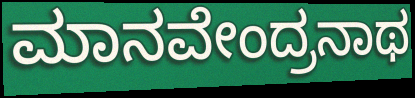
ಮಾನವೇಂದ್ರನಾಥ